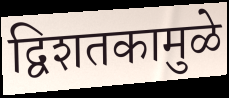
द्विशतकामुळे